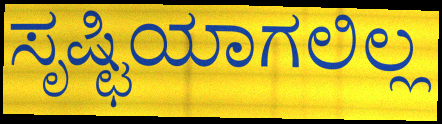
ಸೃಷ್ಟಿಯಾಗಲಿಲ್ಲ